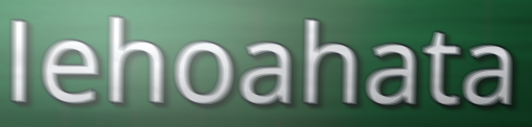
Iehoahata